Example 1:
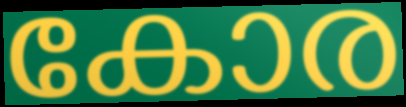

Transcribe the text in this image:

കോര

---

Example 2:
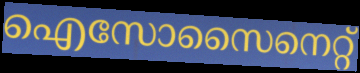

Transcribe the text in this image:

ഐസോസൈനെറ്റ്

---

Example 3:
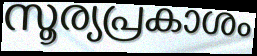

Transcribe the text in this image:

സൂര്യപ്രകാശം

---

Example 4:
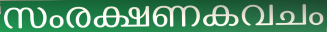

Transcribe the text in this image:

സംരക്ഷണകവചം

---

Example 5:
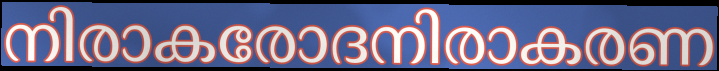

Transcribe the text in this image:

നിരാകരോദനിരാകരണ